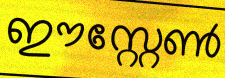
ഈസ്റ്റേൺ